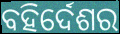
ବହିର୍ଦେଶର